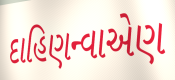
દાહિણન્વાએણ